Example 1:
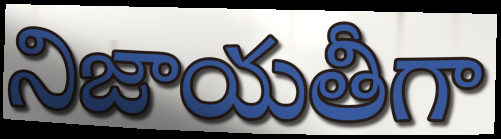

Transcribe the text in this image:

నిజాయతీగా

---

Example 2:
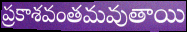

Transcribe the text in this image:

ప్రకాశవంతమవుతాయి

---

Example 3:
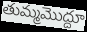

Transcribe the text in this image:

తుమ్మమొద్దూ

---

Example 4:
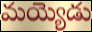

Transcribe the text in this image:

మయ్యెడు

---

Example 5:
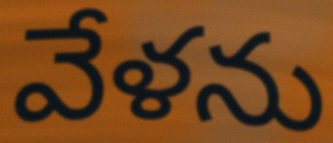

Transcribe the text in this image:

వేళను